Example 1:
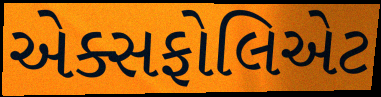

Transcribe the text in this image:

એક્સફોલિએટ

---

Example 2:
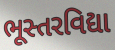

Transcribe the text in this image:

ભૂસ્તરવિદ્યા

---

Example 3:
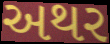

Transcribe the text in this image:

અથર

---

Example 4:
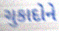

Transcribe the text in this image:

ચુકાદોને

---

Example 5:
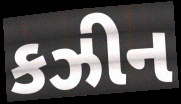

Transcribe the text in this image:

કઝીન